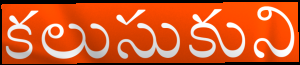
కలుసుకుని